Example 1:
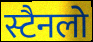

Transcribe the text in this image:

स्टैनलो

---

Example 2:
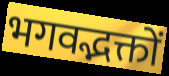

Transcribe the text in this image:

भगवद्भक्तों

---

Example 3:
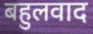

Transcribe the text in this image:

बहुलवाद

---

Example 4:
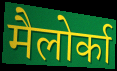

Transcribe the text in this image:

मैलोर्का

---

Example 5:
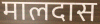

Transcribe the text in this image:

मालदास